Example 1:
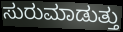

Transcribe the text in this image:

ಸುರುಮಾಡುತ್ತು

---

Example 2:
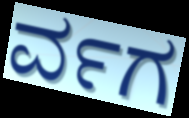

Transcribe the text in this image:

ರ್ವಗ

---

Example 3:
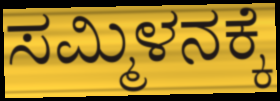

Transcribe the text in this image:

ಸಮ್ಮಿಳನಕ್ಕೆ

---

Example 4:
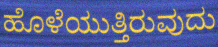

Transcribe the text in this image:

ಹೊಳೆಯುತ್ತಿರುವುದು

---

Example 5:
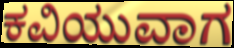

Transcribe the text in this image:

ಕವಿಯುವಾಗ